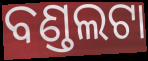
ବଣ୍ଡଲଟା